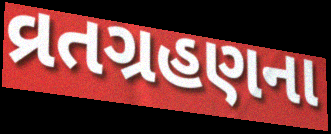
વ્રતગ્રહણના